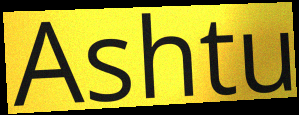
Ashtu